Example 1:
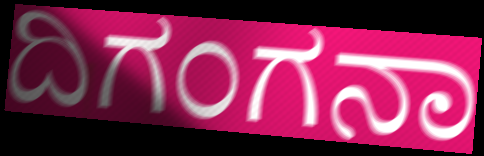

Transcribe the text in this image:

ದಿಗಂಗನಾ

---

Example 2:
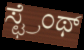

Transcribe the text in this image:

ಸ್ಟ್ರೆಂಥ್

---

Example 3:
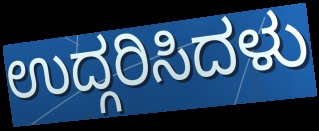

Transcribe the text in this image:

ಉದ್ಗರಿಸಿದಳು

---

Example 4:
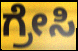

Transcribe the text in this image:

ಗ್ರೇಸಿ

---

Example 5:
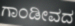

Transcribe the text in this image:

ಗಾಂಡೀವದ